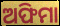
ଅଫିମା